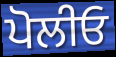
ਪੋਲੀਓ